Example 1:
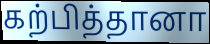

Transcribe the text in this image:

கற்பித்தானா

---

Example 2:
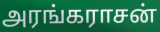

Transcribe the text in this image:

அரங்கராசன்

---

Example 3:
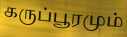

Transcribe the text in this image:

கருப்பூரமும்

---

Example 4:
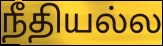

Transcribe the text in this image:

நீதியல்ல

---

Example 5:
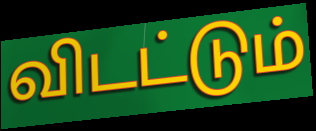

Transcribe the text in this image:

விடட்டும்